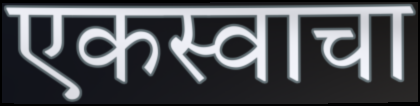
एकस्वाचा